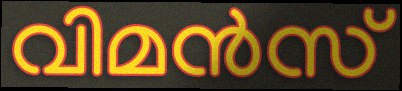
വിമൻസ്